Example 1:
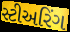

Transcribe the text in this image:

સ્ટીઅરિંગ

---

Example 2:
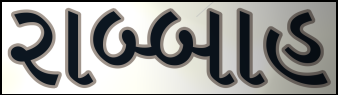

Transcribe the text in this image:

રાબ્બાહ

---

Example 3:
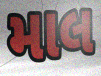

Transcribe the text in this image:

માલ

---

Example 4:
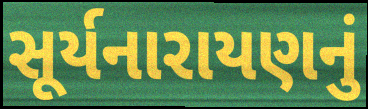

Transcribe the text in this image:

સૂર્યનારાયણનું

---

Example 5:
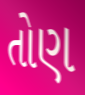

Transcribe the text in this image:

તોણ